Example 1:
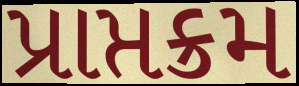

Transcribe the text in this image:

પ્રાપ્તક્રમ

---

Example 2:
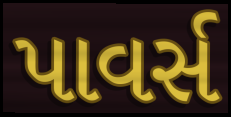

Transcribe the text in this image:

પાવર્સ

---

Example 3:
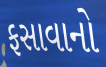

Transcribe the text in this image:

ફસાવાનો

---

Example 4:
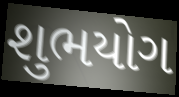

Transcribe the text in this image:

શુભયોગ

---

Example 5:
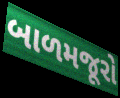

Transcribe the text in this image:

બાળમજૂરો